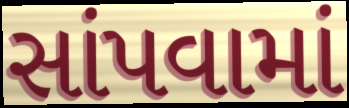
સાંપવામાં